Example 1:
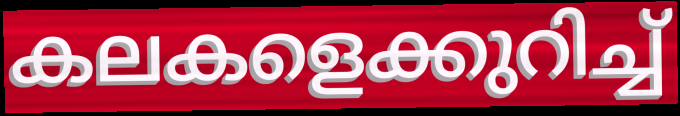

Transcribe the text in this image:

കലകളെക്കുറിച്ച്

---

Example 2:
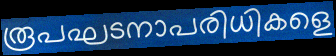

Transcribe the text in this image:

രൂപഘടനാപരിധികളെ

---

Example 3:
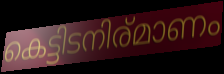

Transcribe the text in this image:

കെട്ടിടനിര്മാണം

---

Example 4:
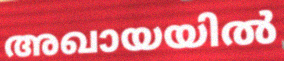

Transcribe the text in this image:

അഖായയിൽ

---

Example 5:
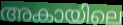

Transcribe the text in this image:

അകായിലെ